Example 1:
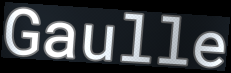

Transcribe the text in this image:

Gaulle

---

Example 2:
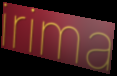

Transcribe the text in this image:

irima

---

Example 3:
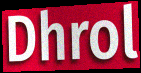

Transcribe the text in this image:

Dhrol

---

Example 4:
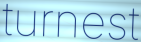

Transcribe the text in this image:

turnest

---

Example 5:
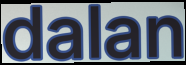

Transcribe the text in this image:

dalan